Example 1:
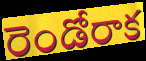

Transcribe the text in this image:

రెండోరాక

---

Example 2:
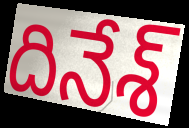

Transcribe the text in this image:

దినేశ్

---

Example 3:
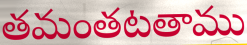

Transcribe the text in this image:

తమంతటతాము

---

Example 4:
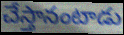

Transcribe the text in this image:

చేస్తానంటాడు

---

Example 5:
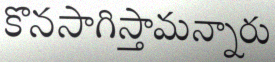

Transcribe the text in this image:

కొనసాగిస్తామన్నారు